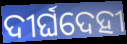
ଦୀର୍ଘଦେହୀ